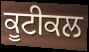
ਕੂਟੀਕਲ